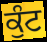
ਕੁੰਟ